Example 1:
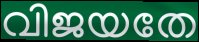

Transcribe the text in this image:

വിജയതേ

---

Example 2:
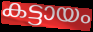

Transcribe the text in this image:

കട്ടായം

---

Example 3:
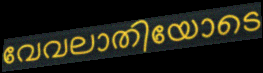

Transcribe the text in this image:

വേവലാതിയോടെ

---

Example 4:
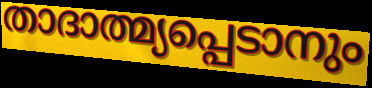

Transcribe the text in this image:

താദാത്മ്യപ്പെടാനും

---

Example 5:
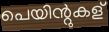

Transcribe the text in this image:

പെയിന്റുകള്